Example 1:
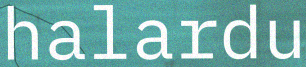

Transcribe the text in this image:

halardu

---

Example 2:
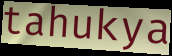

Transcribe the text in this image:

tahukya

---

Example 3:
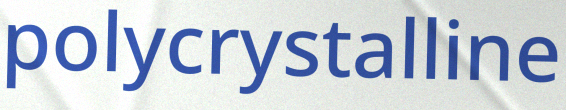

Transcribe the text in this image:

polycrystalline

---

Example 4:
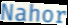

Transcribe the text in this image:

Nahor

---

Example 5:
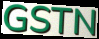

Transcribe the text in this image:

GSTN